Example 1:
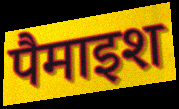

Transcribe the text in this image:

पैमाइश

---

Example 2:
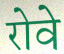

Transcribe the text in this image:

रोवे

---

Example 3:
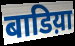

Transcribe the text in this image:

बाडिय़ा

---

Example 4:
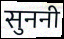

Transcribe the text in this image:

सुननी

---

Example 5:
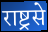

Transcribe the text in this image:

राष्ट्रसे